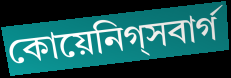
কোয়েনিগ্সবার্গ